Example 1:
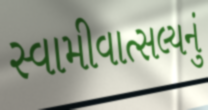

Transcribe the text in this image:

સ્વામીવાત્સલ્યનું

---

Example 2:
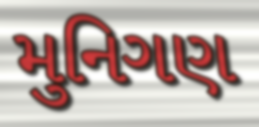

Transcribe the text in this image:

મુનિગણ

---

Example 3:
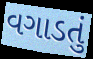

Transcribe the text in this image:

વગાડતું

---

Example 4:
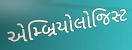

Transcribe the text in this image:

એમ્બ્રિયોલોજિસ્ટ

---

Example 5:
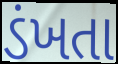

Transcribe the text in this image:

ડંખતા